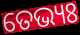
ତେଭ୍ୟଃ